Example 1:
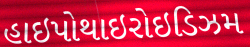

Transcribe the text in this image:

હાઇપોથાઇરોઇડિઝમ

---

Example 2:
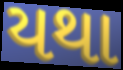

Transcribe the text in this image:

યથા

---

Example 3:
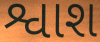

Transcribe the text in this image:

શ્વાશ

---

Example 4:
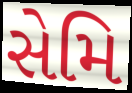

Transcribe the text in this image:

સેમિ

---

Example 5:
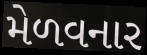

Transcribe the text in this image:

મેળવનાર